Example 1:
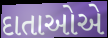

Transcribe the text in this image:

દાતાઓએ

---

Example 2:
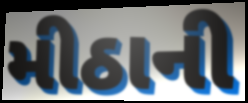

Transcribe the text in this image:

મીઠાની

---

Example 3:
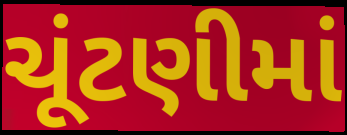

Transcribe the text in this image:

ચૂંટણીમાં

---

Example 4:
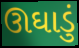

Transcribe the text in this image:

ઊઘાડું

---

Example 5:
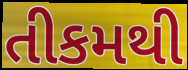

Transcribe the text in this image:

તીકમથી